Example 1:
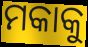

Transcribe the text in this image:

ମକାକୁ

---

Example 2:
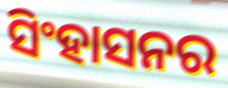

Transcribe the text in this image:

ସିଂହାସନର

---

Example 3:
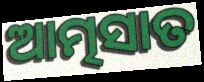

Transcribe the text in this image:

ଆତ୍ମସାତ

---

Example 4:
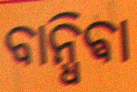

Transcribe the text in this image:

ବାନ୍ଧିଵା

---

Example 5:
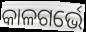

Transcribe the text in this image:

କାଳଗର୍ଭେ